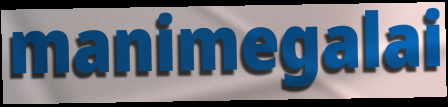
manimegalai